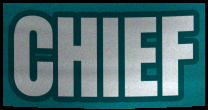
CHIEF